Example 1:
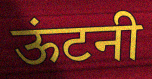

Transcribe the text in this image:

ऊंटनी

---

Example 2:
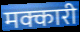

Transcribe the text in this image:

मक्कारी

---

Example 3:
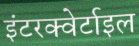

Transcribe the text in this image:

इंटरक्वेर्टाइल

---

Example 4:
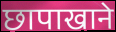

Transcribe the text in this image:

छापाखाने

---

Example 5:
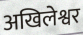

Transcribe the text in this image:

अखिलेश्वर